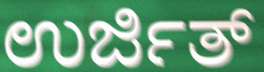
ಉರ್ಜಿತ್